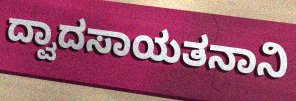
ದ್ವಾದಸಾಯತನಾನಿ